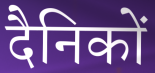
दैनिकों